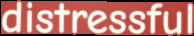
distressful